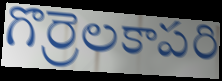
గొర్రెలకాపరి